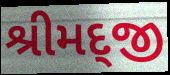
શ્રીમદ્જી